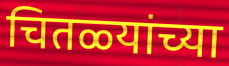
चितळ्यांच्या